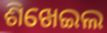
ଶିଖେଇଲ